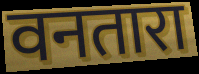
वनतारा